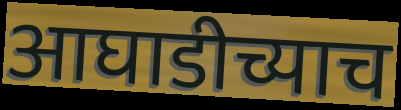
आघाडीच्याच